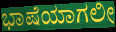
ಭಾಷೆಯಾಗಲೀ